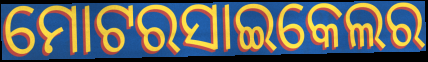
ମୋଟରସାଇକେଲର